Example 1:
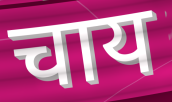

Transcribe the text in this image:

चाय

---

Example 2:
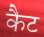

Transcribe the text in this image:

कैट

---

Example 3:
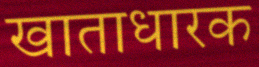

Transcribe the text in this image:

खाताधारक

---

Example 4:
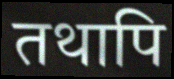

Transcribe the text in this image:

तथापि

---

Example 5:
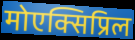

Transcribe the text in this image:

मोएक्सिप्रिल